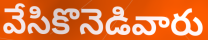
వేసికొనెడివారు